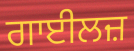
ਗਾਈਲਜ਼